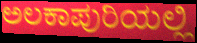
ಅಲಕಾಪುರಿಯಲ್ಲಿ